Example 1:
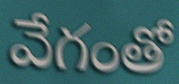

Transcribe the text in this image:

వేగంతో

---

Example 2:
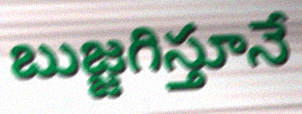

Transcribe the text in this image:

బుజ్జగిస్తూనే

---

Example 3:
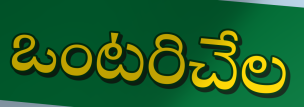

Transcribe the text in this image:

ఒంటరిచేల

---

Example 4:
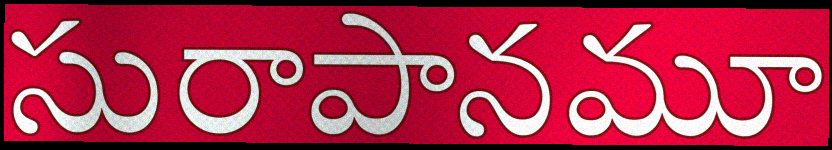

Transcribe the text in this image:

సురాపానమూ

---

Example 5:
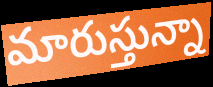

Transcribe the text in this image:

మారుస్తున్నా